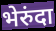
भेरुंदा